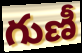
గుణీ